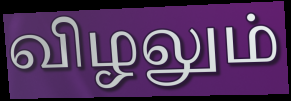
விழலும்